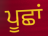
ਪੂਛਾਂ